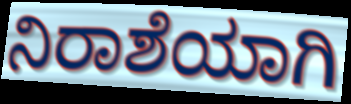
ನಿರಾಶೆಯಾಗಿ